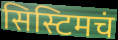
सिस्टिमचं